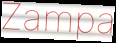
Zampa